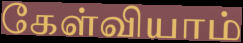
கேள்வியாம்